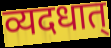
व्यदधात्